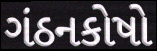
ગંઠનકોષો